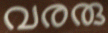
വരരു